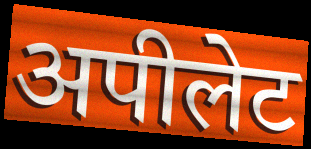
अपीलेट